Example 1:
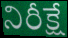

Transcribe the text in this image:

నిరీక్షే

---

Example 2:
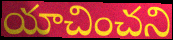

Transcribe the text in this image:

యాచించని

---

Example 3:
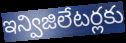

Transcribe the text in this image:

ఇన్విజిలేటర్లకు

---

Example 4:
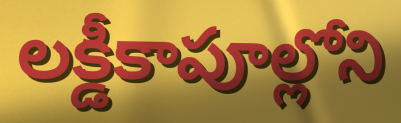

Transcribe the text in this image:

లక్డీకాపూల్లోని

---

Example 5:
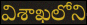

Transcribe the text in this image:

విశాఖలోని